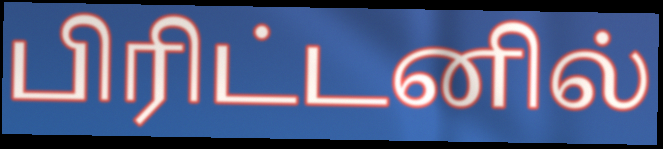
பிரிட்டனில்